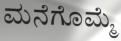
ಮನೆಗೊಮ್ಮೆ